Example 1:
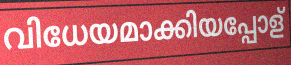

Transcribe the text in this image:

വിധേയമാക്കിയപ്പോള്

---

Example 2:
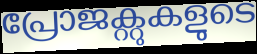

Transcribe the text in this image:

പ്രോജക്റ്റുകളുടെ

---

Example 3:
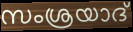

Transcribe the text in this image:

സംശ്രയാദ്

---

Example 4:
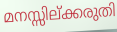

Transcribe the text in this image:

മനസ്സില്ക്കരുതി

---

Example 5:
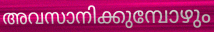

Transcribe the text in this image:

അവസാനിക്കുമ്പോഴും